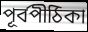
পূর্বপীঠিকা